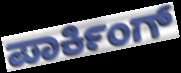
ಪಾರ್ಕಿಂಗ್